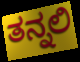
ತನ್ನಲಿ